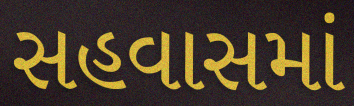
સહવાસમાં